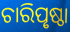
ଚାରିପୃଷ୍ଠା